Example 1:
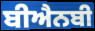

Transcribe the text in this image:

ਬੀਐਨਬੀ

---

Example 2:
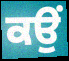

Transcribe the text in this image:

ਕਉਂ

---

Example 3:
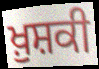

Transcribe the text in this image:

ਖ਼ੁਸ਼ਕੀ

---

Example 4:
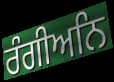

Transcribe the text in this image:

ਰੰਗੀਅਨਿ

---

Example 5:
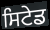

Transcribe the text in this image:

ਸਿਟੇਡ